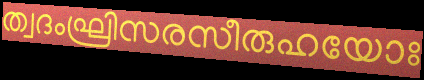
ത്വദംഘ്രിസരസീരുഹയോഃ